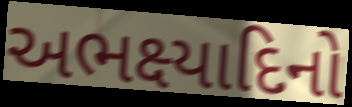
અભક્ષ્યાદિનો